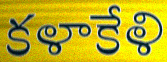
కళాకేళి